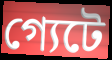
গ্যেটে